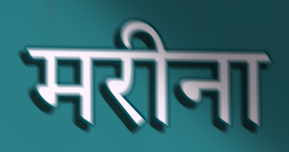
मरीना